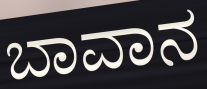
ಬಾವಾನ